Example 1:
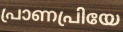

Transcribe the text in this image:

പ്രാണപ്രിയേ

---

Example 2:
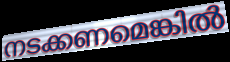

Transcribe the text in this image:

നടക്കണമെങ്കിൽ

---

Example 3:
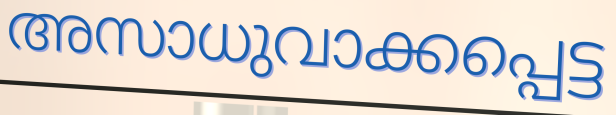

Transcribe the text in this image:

അസാധുവാക്കപ്പെട്ട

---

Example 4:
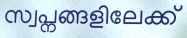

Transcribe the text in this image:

സ്വപ്നങ്ങളിലേക്ക്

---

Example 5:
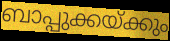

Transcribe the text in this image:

ബാപ്പുക്കയ്ക്കും